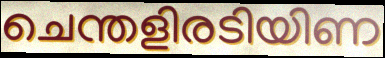
ചെന്തളിരടിയിണ